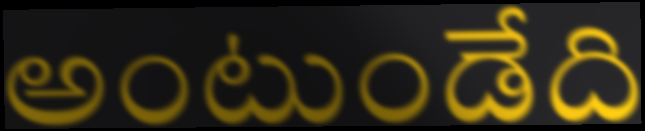
అంటుండేది